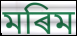
মৰিম